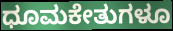
ಧೂಮಕೇತುಗಳೂ